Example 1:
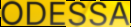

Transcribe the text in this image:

ODESSA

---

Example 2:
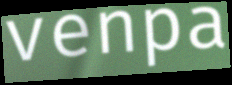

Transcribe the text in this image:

venpa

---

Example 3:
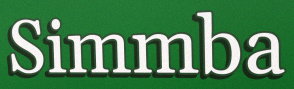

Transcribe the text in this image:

Simmba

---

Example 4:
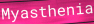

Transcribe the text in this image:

Myasthenia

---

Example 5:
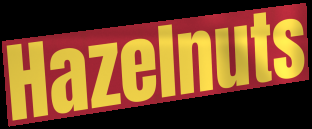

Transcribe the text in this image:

Hazelnuts